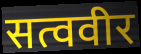
सत्ववीर